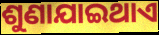
ଶୁଣାଯାଇଥାଏ